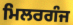
ਮਿਲਰਗੰਜ